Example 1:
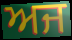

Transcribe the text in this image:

ਅਜ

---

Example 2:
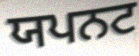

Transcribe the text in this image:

ਯਪਨਟ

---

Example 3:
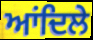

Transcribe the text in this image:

ਆਂਦਿਲੇ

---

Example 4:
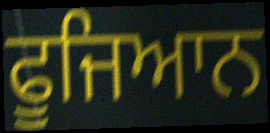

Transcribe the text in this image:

ਫੂਜਿਆਨ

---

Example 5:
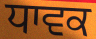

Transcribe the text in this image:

ਧਾਵਕ